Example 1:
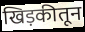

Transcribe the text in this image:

खिड़कीतून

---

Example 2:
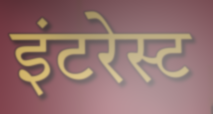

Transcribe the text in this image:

इंटरेस्ट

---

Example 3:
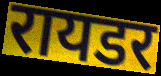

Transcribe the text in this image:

रायडर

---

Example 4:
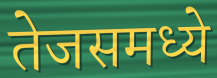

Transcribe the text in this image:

तेजसमध्ये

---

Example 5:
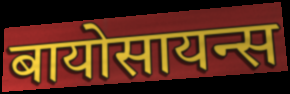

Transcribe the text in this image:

बायोसायन्स